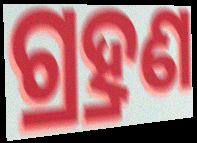
ଗ୍ର୍ରହଣ